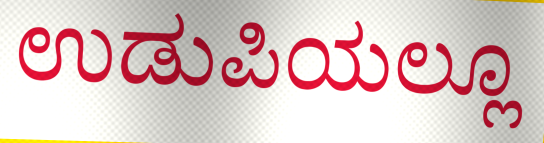
ಉಡುಪಿಯಲ್ಲೂ